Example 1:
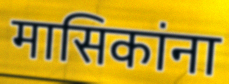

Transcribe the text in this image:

मासिकांना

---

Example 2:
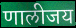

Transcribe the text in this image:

णालीजय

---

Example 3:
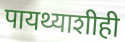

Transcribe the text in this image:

पायथ्याशीही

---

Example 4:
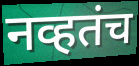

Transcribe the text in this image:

नव्हतंच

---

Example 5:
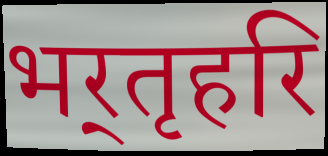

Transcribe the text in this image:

भर्तृहरि